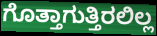
ಗೊತ್ತಾಗುತ್ತಿರಲಿಲ್ಲ